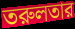
তরুলতার